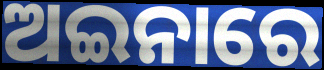
ଅଇନାରେ